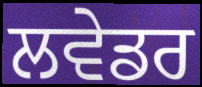
ਲਵੇਡਰ